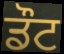
ਡੌਟ